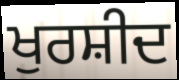
ਖੁਰਸ਼ੀਦ